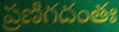
ప్రణిగదంతః